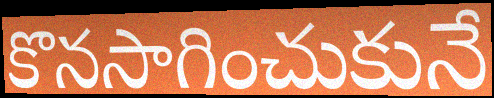
కొనసాగించుకునే